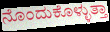
ನೊಂದುಕೊಳ್ಳುತ್ತಾ